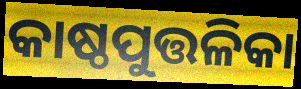
କାଷ୍ଠପୁତ୍ତଳିକା